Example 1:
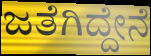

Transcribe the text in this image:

ಜತೆಗಿದ್ದೇನೆ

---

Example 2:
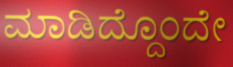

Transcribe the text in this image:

ಮಾಡಿದ್ದೊಂದೇ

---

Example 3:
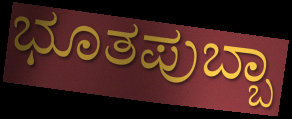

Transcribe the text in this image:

ಭೂತಪುಬ್ಬಾ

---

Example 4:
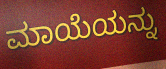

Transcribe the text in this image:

ಮಾಯೆಯನ್ನು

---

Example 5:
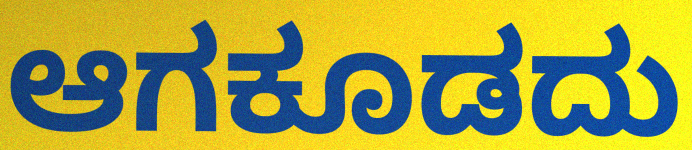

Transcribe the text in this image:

ಆಗಕೂಡದು